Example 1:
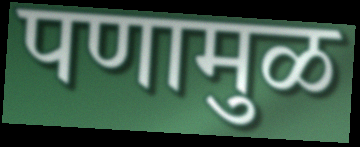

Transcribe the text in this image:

पणामुळ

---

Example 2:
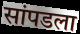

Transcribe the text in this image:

सांपडला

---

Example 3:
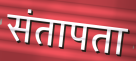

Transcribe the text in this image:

संतापता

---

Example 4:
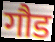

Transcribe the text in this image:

गौड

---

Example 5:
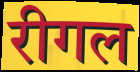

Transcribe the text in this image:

रीगल